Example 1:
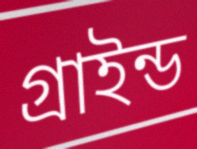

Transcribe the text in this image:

গ্রাইন্ড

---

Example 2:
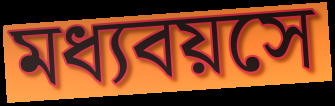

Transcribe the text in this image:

মধ্যবয়সে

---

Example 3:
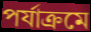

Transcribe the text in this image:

পর্যাক্রমে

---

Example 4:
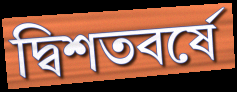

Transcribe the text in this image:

দ্বিশতবর্ষে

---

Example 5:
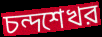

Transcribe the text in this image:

চন্দশেখর